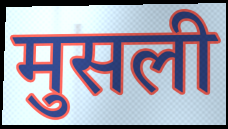
मुसली